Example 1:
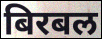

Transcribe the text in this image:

बिरबल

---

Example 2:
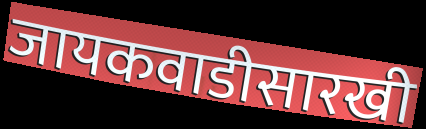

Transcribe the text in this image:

जायकवाडीसारखी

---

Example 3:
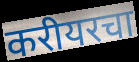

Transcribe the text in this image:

करीयरचा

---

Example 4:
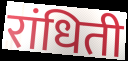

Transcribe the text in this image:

रांधिती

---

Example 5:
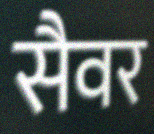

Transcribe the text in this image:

सैवर